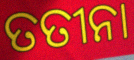
ତତୀନା